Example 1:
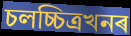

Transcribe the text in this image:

চলচ্চিত্ৰখনৰ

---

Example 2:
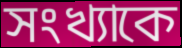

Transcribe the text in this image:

সংখ্যাকে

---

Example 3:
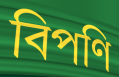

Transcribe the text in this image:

বিপণি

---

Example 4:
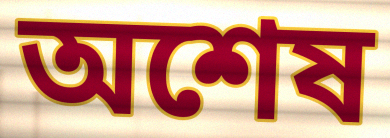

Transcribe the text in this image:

অশেষ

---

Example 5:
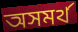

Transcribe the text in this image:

অসমৰ্থ